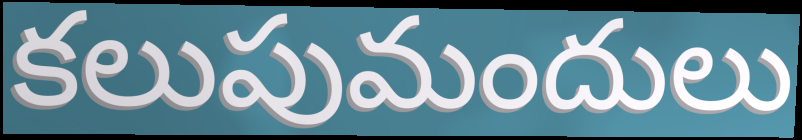
కలుపుమందులు